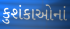
કુશંકાઓનાં